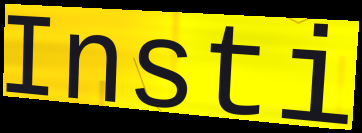
Insti